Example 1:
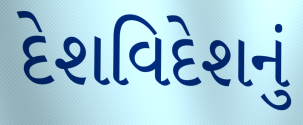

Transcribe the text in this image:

દેશવિદેશનું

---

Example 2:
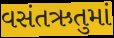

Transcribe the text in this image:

વસંતઋતુમાં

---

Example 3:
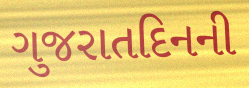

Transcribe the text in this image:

ગુજરાતદિનની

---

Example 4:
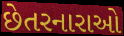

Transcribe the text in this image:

છેતરનારાઓ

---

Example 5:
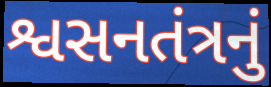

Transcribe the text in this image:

શ્વસનતંત્રનું